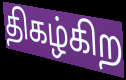
திகழ்கிற